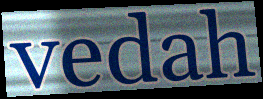
vedah